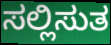
ಸಲ್ಲಿಸುತ